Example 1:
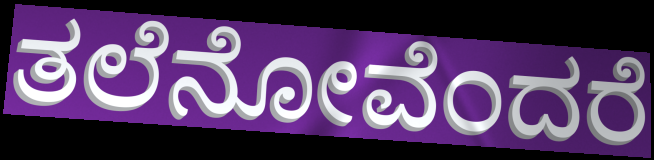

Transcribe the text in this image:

ತಲೆನೋವೆಂದರೆ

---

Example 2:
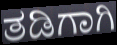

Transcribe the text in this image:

ತಡಿಗಾಗಿ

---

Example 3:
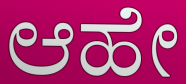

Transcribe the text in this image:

ಆಹೇ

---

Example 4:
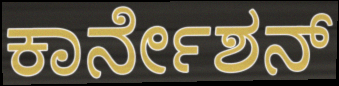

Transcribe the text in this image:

ಕಾರ್ನೇಶನ್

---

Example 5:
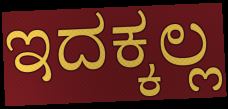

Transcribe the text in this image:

ಇದಕ್ಕಲ್ಲ